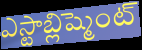
ఎస్టాబ్లిష్మెంట్